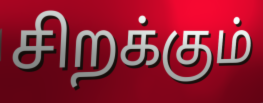
சிறக்கும்